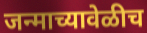
जन्माच्यावेळीच